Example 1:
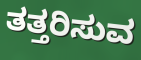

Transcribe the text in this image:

ತತ್ತರಿಸುವ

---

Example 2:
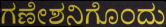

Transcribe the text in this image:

ಗಣೇಶನಿಗೊಂದು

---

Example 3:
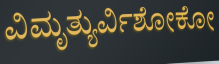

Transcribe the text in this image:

ವಿಮೃತ್ಯುರ್ವಿಶೋಕೋ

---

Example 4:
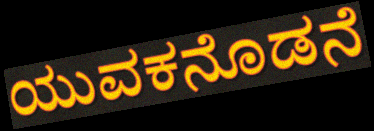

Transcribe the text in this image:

ಯುವಕನೊಡನೆ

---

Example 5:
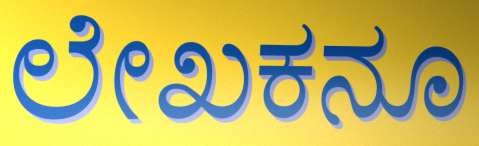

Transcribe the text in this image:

ಲೇಖಕನೂ